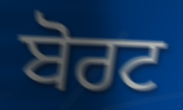
ਬੋਰਟ